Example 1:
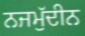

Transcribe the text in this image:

ਨਜਮੁੱਦੀਨ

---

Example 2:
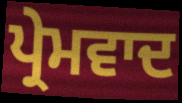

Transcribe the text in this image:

ਪ੍ਰੇਮਵਾਦ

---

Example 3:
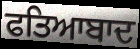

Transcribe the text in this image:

ਫਤਿਆਬਾਦ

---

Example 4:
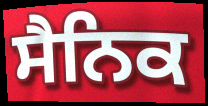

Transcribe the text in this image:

ਸੈਨਿਕ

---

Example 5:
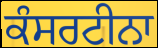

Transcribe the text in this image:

ਕੰਸਰਟੀਨਾ